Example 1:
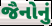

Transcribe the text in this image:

જૈનોનું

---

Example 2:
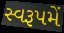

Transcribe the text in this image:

સ્વરૂપમેં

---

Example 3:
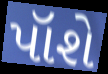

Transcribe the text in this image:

પૉશે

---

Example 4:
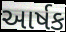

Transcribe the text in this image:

આર્ષક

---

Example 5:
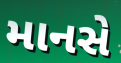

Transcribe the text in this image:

માનસે